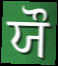
ਯੌ